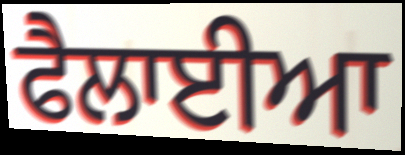
ਫੈਲਾਈਆ